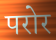
परोर